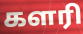
களரி